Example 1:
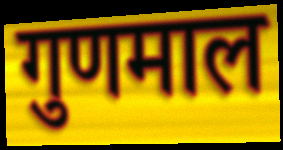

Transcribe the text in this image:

गुणमाल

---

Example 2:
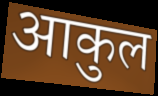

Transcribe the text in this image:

आकुल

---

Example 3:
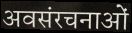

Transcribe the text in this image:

अवसंरचनाओं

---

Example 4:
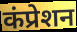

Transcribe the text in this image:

कंप्रेशन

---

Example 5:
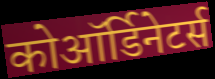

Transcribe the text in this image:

कोऑर्डिनेटर्स